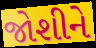
જોશીને